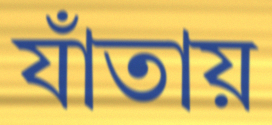
যাঁতায়